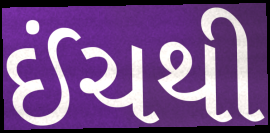
ઈંચથી